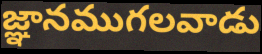
జ్ఞానముగలవాడు